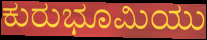
ಕುರುಭೂಮಿಯು